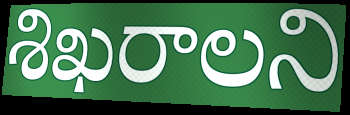
శిఖరాలని